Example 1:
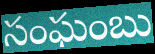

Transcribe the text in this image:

సంఘంబు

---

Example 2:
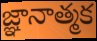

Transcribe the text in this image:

జ్ఞానాత్మక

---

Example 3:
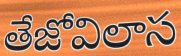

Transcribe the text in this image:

తేజోవిలాస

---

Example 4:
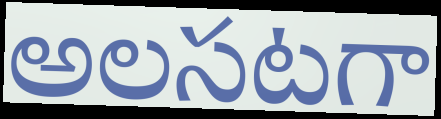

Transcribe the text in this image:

అలసటగా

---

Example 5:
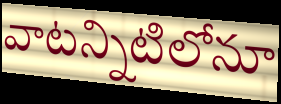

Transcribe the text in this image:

వాటన్నిటిలోనూ